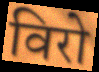
विरो